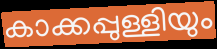
കാക്കപ്പുള്ളിയും